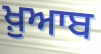
ਖ਼ੁਆਬ